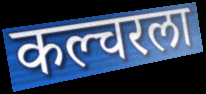
कल्चरला